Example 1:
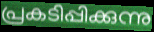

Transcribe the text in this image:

പ്രകടിപ്പിക്കുന്നു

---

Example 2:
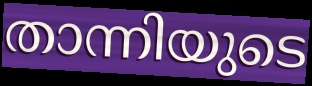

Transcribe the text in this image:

താന്നിയുടെ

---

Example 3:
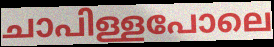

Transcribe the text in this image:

ചാപിള്ളപോലെ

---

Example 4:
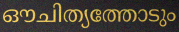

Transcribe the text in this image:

ഔചിത്യത്തോടും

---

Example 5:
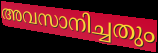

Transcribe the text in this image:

അവസാനിച്ചതും